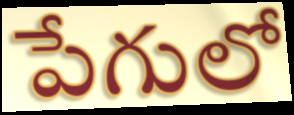
పేగులో